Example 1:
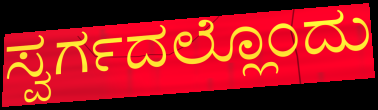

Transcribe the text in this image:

ಸ್ವರ್ಗದಲ್ಲೊಂದು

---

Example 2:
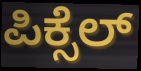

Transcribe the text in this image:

ಪಿಕ್ಸೆಲ್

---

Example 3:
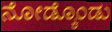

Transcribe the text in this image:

ನೋಡ್ಕೊಂಡು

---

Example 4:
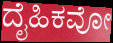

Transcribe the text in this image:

ದೈಹಿಕವೋ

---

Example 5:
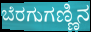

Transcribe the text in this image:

ಬೆರಗುಗಣ್ಣಿನ